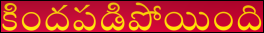
కిందపడిపోయింది